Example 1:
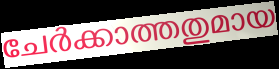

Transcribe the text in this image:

ചേർക്കാത്തതുമായ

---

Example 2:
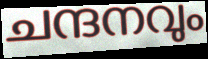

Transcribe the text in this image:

ചന്ദനവും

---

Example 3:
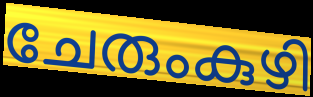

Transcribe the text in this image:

ചേരുംകുഴി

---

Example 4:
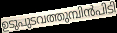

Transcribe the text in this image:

ഉടുപുടവത്തുമ്പിൻപിടി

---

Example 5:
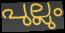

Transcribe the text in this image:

പുല്ലും